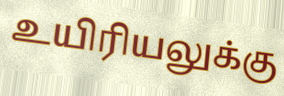
உயிரியலுக்கு